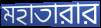
মহাতারার